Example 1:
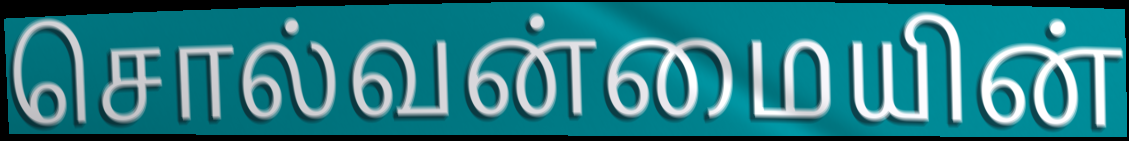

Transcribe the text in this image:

சொல்வன்மையின்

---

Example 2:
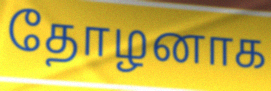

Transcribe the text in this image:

தோழனாக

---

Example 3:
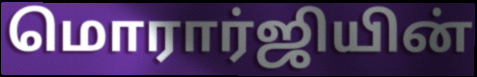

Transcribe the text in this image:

மொரார்ஜியின்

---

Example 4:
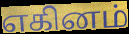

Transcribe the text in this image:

எகினம்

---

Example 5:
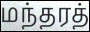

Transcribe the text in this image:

மந்தரத்